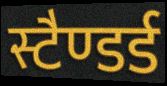
स्टैण्डर्ड